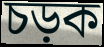
চড়ক